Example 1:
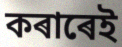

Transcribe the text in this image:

কৰাৰেই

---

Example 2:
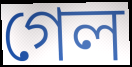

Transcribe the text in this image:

গেল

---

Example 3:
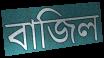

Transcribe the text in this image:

বাজিল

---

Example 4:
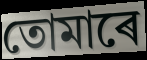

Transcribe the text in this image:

তোমাৰে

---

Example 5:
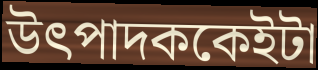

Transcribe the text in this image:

উৎপাদককেইটা